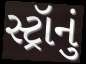
સ્ટ્રૉનું